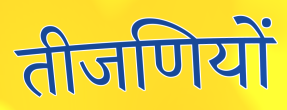
तीजणियों